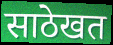
साठेखत